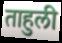
ताहुली